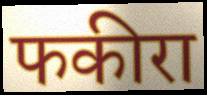
फकीरा